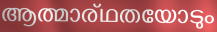
ആത്മാര്ഥതയോടും